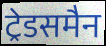
ट्रेडसमैन